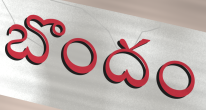
బొందం